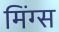
मिंग्स